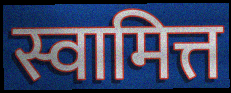
स्वामित्त